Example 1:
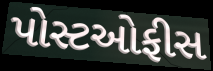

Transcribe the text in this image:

પોસ્ટઓફીસ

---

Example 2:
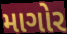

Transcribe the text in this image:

માગોર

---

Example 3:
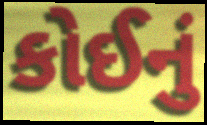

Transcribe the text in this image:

કોઈનું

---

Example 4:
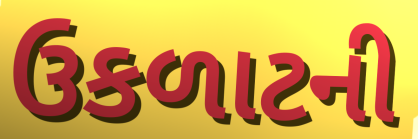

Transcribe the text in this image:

ઉકળાટની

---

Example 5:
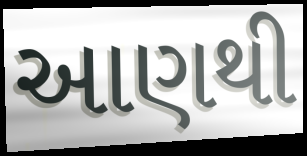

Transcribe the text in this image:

આણથી